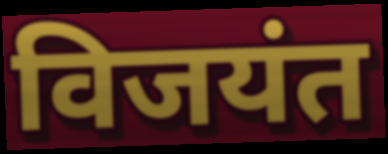
विजयंत